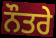
ਨੌਤਰੇ